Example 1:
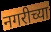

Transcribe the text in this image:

नगरीच्या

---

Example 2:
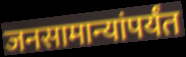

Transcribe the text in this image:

जनसामान्यांपर्यंत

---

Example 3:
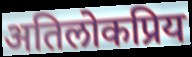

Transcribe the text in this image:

अतिलोकप्रिय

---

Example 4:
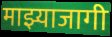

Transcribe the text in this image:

माझ्याजागी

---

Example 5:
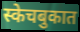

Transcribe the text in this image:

स्केचबुकात